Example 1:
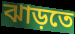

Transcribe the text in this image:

ঝাড়তে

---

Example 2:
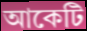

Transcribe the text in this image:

আকেটি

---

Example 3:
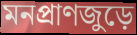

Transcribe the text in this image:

মনপ্রাণজুড়ে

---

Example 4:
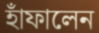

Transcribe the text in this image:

হাঁফালেন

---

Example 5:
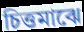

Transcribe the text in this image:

চিত্তমাঝে